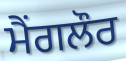
ਮੈਂਗਲੌਰ